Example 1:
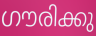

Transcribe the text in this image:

ഗൗരിക്കു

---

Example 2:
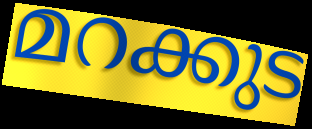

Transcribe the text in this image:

മറക്കുട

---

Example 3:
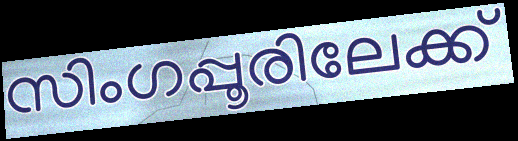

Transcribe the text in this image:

സിംഗപ്പൂരിലേക്ക്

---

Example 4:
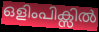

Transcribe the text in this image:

ഒളിംപിക്സിൽ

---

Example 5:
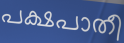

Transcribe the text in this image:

പക്ഷപാതീ